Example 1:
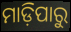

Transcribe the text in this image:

ମାଡ଼ିପାରୁ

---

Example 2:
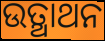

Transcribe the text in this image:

ଉତ୍ଥାଥନ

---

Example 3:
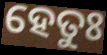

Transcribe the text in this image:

ହେତୁଃ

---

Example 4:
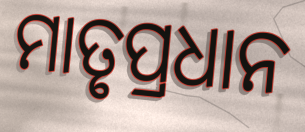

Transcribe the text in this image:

ମାତୃପ୍ରଧାନ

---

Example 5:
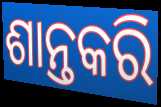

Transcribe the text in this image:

ଶାନ୍ତକରି